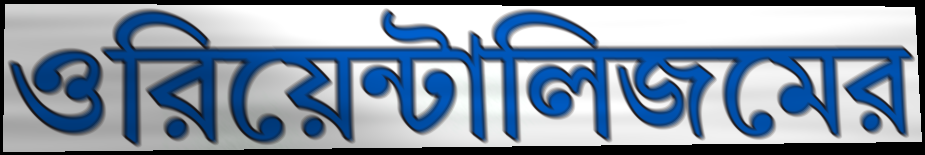
ওরিয়েন্টালিজমের